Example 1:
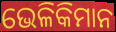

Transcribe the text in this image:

ଭେଳିକିମାନ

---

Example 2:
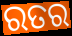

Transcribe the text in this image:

ରତର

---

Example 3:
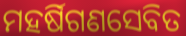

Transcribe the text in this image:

ମହର୍ଷିଗଣସେବିତ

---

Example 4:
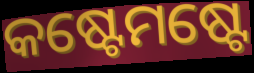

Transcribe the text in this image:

କଷ୍ଟେମଷ୍ଟେ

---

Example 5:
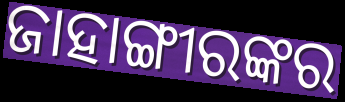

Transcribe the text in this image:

ଜାହାଙ୍ଗୀରଙ୍କର